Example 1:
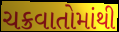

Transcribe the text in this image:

ચક્રવાતોમાંથી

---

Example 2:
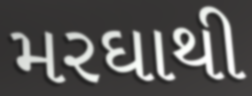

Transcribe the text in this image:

મરઘાથી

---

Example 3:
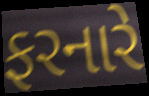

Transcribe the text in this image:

ફરનારે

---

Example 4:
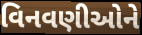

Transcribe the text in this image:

વિનવણીઓને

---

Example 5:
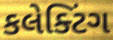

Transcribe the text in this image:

કલેક્ટિંગ